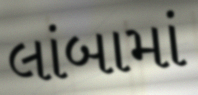
લાંબામાં